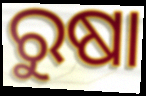
ରୁଷା